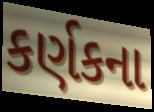
કર્ણકના